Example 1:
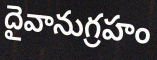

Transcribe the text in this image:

దైవానుగ్రహం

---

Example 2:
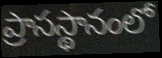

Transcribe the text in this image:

ప్రాసస్థానంలో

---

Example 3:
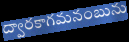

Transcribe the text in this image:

ద్వారకాగమనంబును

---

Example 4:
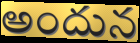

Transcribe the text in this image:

అందున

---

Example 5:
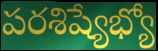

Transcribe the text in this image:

పరశిష్యేభ్యో